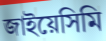
জাইয়েসিমি